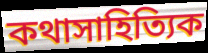
কথাসাহিত্যিক